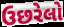
ઉછરેલો